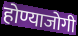
होण्याजोगी